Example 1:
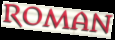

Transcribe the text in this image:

ROMAN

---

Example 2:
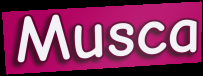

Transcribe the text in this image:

Musca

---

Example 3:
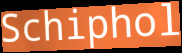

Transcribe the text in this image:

Schiphol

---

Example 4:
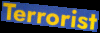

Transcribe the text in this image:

Terrorist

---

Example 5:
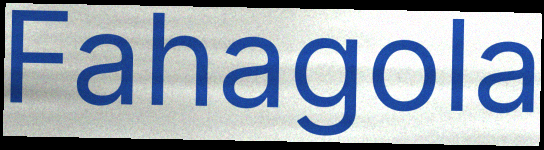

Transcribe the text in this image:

Fahagola